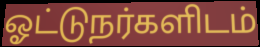
ஓட்டுநர்களிடம்